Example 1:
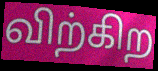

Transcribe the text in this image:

விற்கிற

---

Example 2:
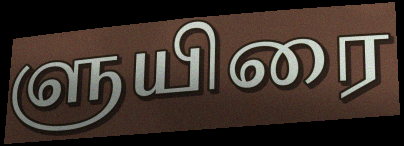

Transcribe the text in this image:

ளுயிரை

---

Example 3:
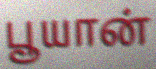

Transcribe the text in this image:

பூயான்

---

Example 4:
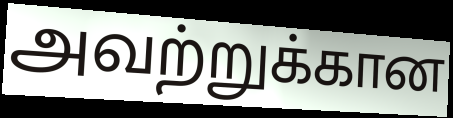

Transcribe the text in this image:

அவற்றுக்கான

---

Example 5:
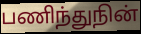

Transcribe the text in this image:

பணிந்துநின்